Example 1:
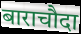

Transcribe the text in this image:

बाराचौदा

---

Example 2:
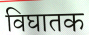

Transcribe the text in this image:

विघातक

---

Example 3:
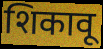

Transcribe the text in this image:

शिकावू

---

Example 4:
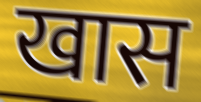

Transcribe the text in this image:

खास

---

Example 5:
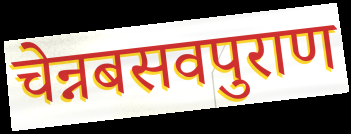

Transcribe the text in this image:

चेन्नबसवपुराण